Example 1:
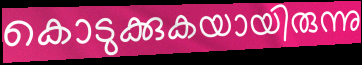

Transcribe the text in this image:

കൊടുക്കുകയായിരുന്നു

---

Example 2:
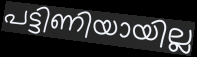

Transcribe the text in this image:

പട്ടിണിയായില്ല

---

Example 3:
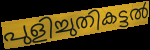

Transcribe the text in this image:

പുളിച്ചുതികട്ടൽ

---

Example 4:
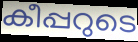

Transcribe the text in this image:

കീപ്പറുടെ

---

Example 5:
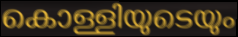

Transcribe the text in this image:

കൊള്ളിയുടെയും